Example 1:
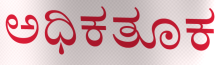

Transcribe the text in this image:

ಅಧಿಕತೂಕ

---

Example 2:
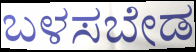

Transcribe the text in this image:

ಬಳಸಬೇಡ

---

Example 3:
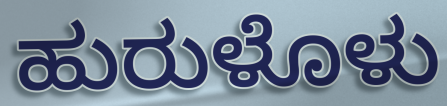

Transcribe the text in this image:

ಹುರುಳೊಳು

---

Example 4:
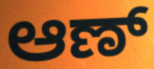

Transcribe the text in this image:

ಆಣ್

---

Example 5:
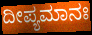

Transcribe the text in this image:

ದೀಪ್ಯಮಾನಃ